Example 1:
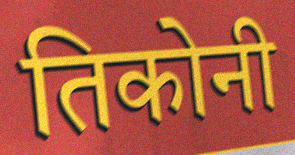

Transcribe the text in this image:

तिकोनी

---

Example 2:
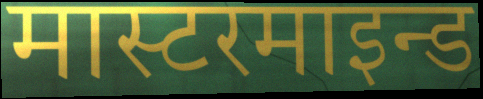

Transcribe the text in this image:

मास्टरमाइन्ड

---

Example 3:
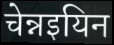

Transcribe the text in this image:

चेन्नइयिन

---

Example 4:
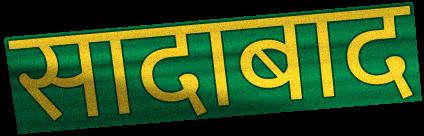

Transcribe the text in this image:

सादाबाद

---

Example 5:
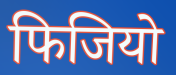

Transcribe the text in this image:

फिजियो